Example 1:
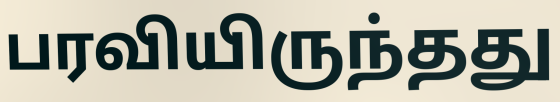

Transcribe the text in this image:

பரவியிருந்தது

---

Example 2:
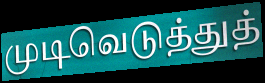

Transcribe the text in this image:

முடிவெடுத்துத்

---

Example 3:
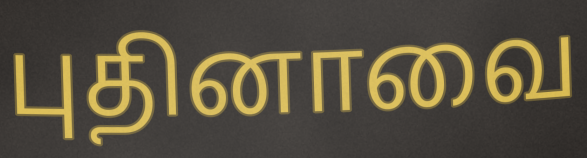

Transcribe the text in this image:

புதினாவை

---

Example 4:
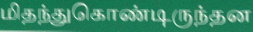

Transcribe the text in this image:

மிதந்துகொண்டிருந்தன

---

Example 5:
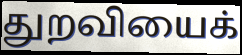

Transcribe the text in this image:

துறவியைக்